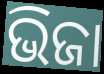
ଭିଜା